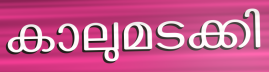
കാലുമടക്കി